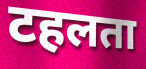
टहलता